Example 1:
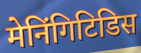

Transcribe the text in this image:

मेनिंगिटिडिस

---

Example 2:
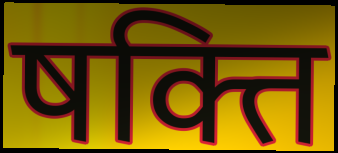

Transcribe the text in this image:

षक्ति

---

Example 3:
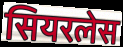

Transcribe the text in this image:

सियरलेस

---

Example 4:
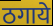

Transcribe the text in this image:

ठगाये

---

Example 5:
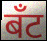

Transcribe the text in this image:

बँट